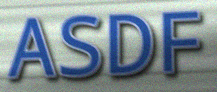
ASDF